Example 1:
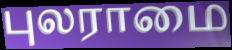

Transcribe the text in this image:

புலராமை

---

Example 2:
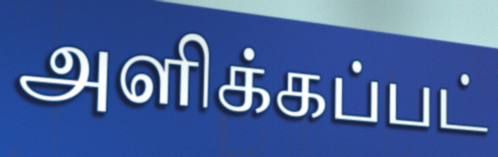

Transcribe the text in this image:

அளிக்கப்பட்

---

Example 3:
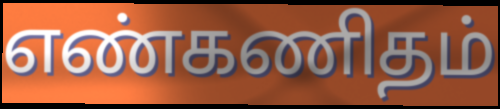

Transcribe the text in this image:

எண்கணிதம்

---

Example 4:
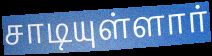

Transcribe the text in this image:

சாடியுள்ளார்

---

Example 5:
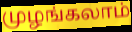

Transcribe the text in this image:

முழங்கலாம்